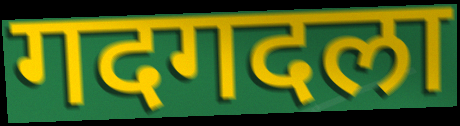
गदगदला